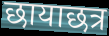
छायाछत्र